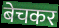
बेचकर